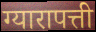
ग्यारापत्ती